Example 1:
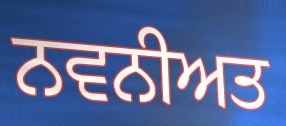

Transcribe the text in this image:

ਨਵਨੀਅਤ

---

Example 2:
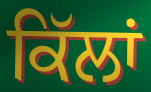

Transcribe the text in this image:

ਕਿੱਲਾਂ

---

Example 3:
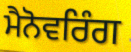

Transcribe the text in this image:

ਮੈਨੋਵਰਿੰਗ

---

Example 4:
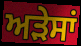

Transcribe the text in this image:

ਅੜੇਸਾਂ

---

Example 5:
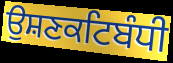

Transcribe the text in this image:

ਉਸ਼ਣਕਟਿਬੰਧੀ